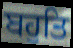
ਬਹੁਤਿ